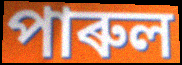
পাৰুল